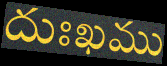
దుఃఖము